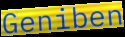
Geniben